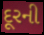
દૂરની